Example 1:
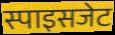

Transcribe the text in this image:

स्पाइसजेट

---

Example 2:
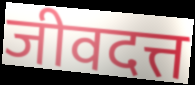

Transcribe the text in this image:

जीवदत्त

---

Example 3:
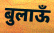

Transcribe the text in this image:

बुलाऊँ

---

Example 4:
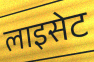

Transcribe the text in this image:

लाइसेट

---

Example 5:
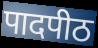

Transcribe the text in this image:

पादपीठ